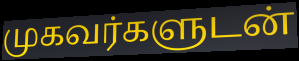
முகவர்களுடன்